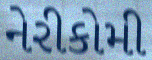
નેરીકોમી